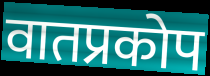
वातप्रकोप